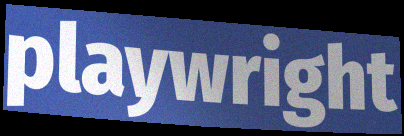
playwright